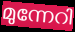
മുന്നേറി